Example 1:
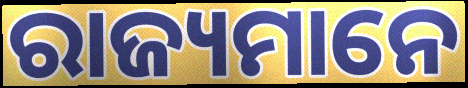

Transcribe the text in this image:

ରାଜ୍ୟମାନେ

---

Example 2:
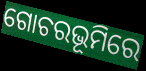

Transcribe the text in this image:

ଗୋଚରଭୂମିରେ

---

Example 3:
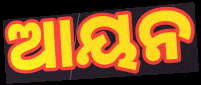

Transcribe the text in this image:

ଆୟନ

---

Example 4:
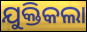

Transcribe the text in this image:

ଯୁକ୍ତିକଲା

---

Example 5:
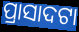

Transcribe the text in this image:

ପ୍ରାସାଦଟା